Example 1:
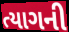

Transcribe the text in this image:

ત્યાગની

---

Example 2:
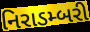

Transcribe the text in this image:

નિરાડમ્બરી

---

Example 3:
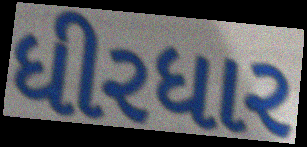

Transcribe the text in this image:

ધીરધાર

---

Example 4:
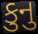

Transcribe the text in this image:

કુનુ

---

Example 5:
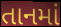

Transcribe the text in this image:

તાનમાં